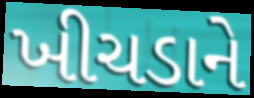
ખીચડાને